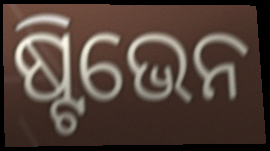
ଷ୍ଟିଭେନ